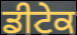
ਡੀਟੇਕ